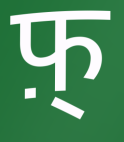
फ़्